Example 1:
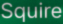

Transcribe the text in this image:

Squire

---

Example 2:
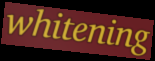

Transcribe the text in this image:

whitening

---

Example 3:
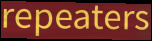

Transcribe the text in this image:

repeaters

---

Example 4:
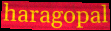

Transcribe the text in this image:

haragopal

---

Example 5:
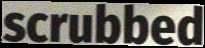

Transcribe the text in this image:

scrubbed